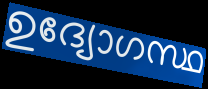
ഉദ്യോഗസ്ഥ